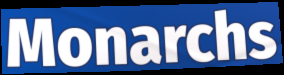
Monarchs